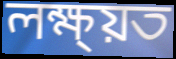
লক্ষ্য়ত